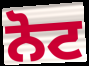
ਨੋਟ